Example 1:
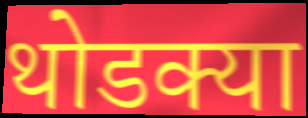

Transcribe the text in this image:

थोडक्या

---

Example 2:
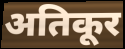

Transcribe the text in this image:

अतिकूर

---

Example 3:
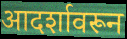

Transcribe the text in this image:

आदर्शावरून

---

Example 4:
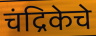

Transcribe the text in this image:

चंद्रिकेचे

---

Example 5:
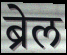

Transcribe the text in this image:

ब्रेल